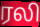
ரலி